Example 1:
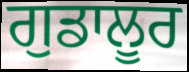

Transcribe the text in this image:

ਗੁਡਾਲੂਰ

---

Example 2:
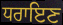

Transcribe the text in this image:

ਧਰਾਇਣ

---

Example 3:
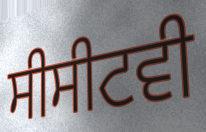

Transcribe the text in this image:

ਸੀਸੀਟਵੀ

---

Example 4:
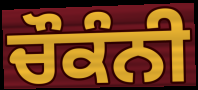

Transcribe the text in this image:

ਚੌਕੰਨੀ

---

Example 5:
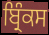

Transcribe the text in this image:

ਬ੍ਰਿੰਕਸ